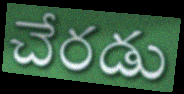
చేరడు